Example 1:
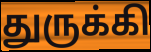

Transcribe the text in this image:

துருக்கி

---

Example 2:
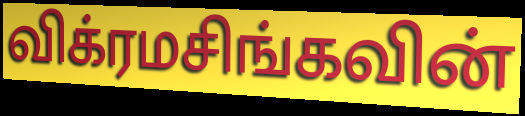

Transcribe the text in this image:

விக்ரமசிங்கவின்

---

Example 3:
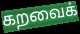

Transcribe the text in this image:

கறவைக்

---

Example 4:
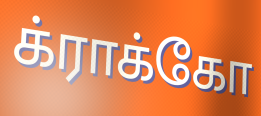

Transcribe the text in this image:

க்ராக்கோ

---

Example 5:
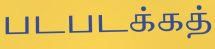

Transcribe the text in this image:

படபடக்கத்